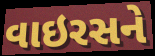
વાઇરસને